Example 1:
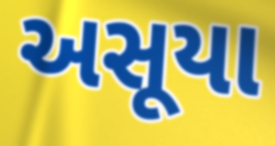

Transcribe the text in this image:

અસૂયા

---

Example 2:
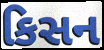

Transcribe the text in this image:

કિસન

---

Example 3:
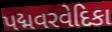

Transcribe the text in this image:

પદ્મવરવેદિકા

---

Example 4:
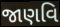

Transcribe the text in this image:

જાણવિ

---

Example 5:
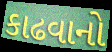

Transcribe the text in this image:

કાઢવાનો